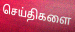
செய்திகளை